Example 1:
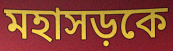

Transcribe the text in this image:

মহাসড়কে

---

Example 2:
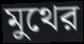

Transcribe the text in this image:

মুথের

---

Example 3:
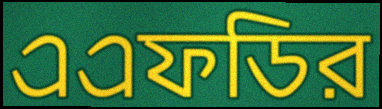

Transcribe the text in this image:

এএফডির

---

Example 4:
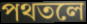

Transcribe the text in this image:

পথতলে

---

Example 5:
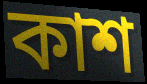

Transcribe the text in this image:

কাশ